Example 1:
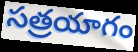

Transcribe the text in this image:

సత్రయాగం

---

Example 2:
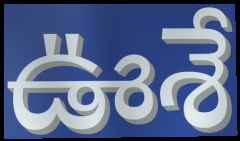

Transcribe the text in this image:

ఊశే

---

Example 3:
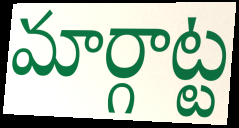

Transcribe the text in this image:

మార్గాట్ట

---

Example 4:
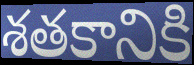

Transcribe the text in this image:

శతకానికి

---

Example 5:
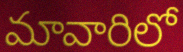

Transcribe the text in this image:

మావారిలో